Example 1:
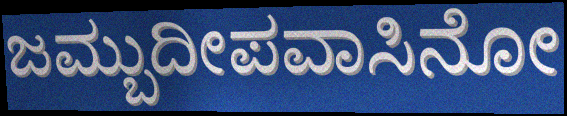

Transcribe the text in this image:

ಜಮ್ಬುದೀಪವಾಸಿನೋ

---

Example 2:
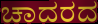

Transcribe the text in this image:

ಚಾದರದ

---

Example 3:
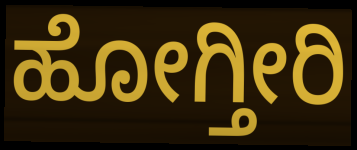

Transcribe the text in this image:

ಹೋಗ್ತೀರಿ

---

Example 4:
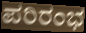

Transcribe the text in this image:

ಪರಿರಂಭ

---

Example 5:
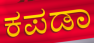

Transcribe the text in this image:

ಕಪಡಾ